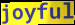
joyful